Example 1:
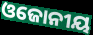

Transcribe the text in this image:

ଓଜୋନୀୟ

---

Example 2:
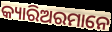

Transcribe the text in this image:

କ୍ୟାରିଅରମାନେ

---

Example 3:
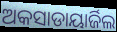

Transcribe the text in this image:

ଅକସାଡାୟାର୍ଜିଲ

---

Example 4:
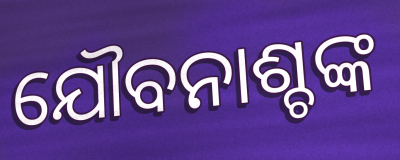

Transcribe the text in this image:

ଯୌବନାଶ୍ଚଙ୍କ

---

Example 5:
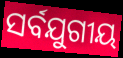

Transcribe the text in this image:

ସର୍ବଯୁଗୀୟ